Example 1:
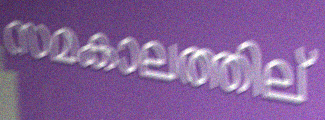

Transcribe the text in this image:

സമകാലത്തില്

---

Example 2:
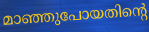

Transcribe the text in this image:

മാഞ്ഞുപോയതിന്റെ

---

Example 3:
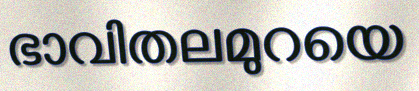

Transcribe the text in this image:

ഭാവിതലമുറയെ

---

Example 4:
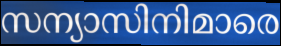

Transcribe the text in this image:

സന്യാസിനിമാരെ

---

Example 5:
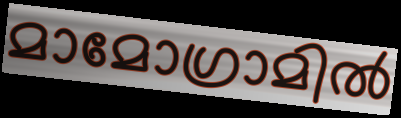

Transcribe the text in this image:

മാമോഗ്രാമിൽ